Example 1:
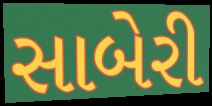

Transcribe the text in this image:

સાબેરી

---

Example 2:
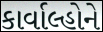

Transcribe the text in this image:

કાર્વાલ્હોને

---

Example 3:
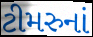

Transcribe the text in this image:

ટીમરુનાં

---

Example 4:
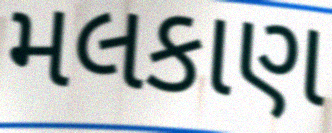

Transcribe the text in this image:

મલકાણ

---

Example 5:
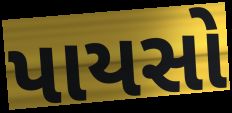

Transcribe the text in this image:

પાયસો